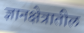
ज्ञानक्षेत्रातील